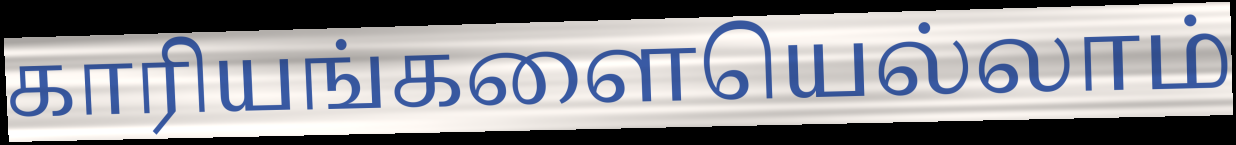
காரியங்களையெல்லாம்